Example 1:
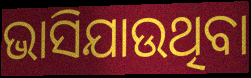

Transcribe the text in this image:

ଭାସିଯାଉଥିବା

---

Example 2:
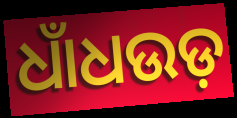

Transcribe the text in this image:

ଧାଁଧଉଡ଼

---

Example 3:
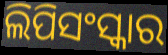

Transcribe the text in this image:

ଲିପିସଂସ୍କାର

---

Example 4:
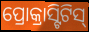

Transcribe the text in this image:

ପ୍ରୋକ୍ରାସ୍ଟିଟିସ୍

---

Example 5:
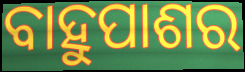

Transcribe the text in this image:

ବାହୁପାଶର